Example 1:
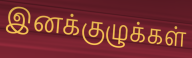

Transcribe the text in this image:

இனக்குழுக்கள்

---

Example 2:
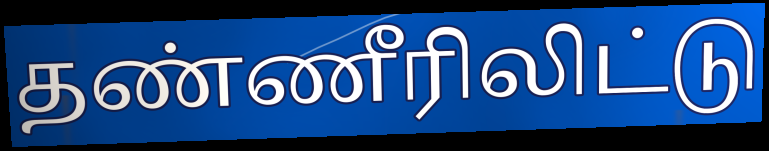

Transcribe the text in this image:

தண்ணீரிலிட்டு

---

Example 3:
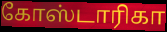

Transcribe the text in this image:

கோஸ்டாரிகா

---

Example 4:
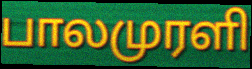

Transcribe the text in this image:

பாலமுரளி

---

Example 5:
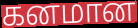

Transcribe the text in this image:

கனமான